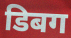
डिबग